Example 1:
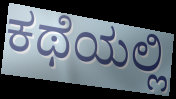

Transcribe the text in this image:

ಕಥೆಯಲ್ಲಿ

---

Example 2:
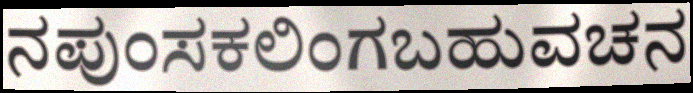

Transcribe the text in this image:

ನಪುಂಸಕಲಿಂಗಬಹುವಚನ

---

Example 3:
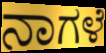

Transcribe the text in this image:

ನಾಗಳೆ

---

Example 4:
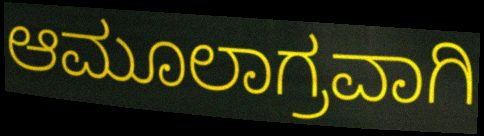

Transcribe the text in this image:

ಆಮೂಲಾಗ್ರವಾಗಿ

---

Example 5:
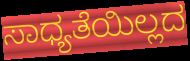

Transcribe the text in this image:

ಸಾಧ್ಯತೆಯಿಲ್ಲದ